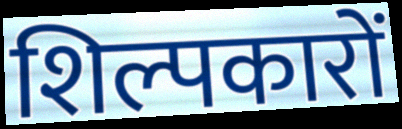
शिल्पकारों